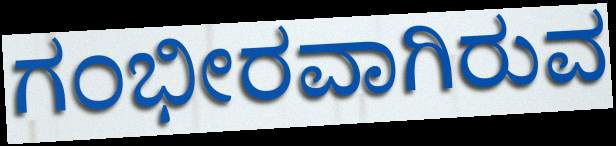
ಗಂಭೀರವಾಗಿರುವ